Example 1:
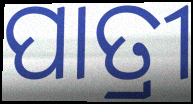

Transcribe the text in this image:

ପାତ୍ରୀ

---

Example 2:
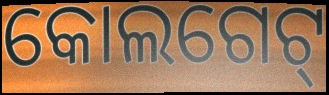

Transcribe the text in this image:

କୋଲଗେଟ୍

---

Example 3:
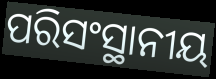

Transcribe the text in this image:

ପରିସଂସ୍ଥାନୀୟ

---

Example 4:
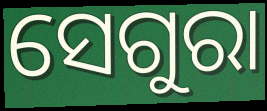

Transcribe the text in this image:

ସେଗୁରା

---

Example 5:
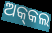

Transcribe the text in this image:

ଅକ୍‌କଲ